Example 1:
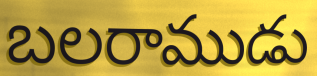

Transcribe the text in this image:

బలరాముడు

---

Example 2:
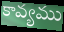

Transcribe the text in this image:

కావ్యము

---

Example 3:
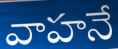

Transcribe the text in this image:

వాహనే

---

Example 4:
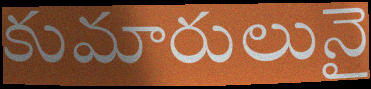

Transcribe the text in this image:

కుమారులునై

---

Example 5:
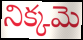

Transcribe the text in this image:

నిక్కమె